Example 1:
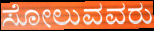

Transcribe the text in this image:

ಸೋಲುವವರು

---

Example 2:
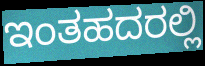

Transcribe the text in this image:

ಇಂತಹದರಲ್ಲಿ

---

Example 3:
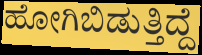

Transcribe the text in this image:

ಹೋಗಿಬಿಡುತ್ತಿದ್ದೆ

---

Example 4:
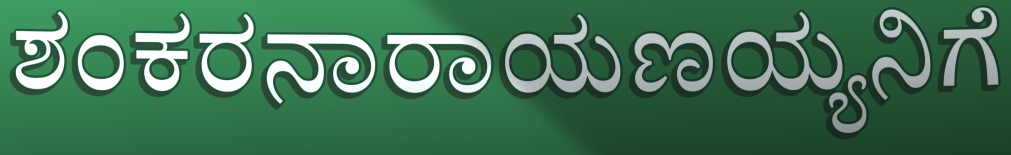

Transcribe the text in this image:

ಶಂಕರನಾರಾಯಣಯ್ಯನಿಗೆ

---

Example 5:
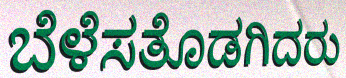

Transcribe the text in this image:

ಬೆಳೆಸತೊಡಗಿದರು